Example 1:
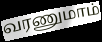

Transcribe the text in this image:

வரணுமாம்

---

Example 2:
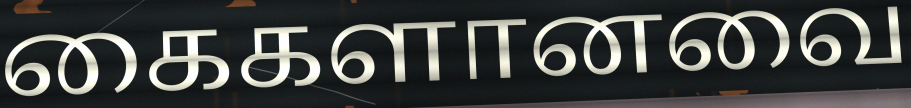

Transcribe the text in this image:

கைகளானவை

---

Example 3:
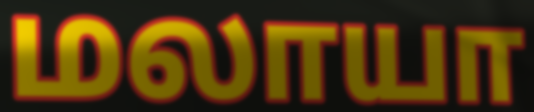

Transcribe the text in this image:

மலாயா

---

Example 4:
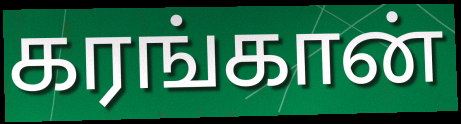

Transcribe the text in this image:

கரங்கான்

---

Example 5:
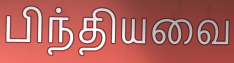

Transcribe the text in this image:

பிந்தியவை